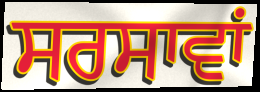
ਸਰਸਾਵਾਂ